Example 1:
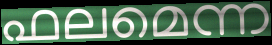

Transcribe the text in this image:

ഫലമെന്ന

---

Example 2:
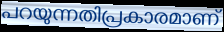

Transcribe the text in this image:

പറയുന്നതിപ്രകാരമാണ്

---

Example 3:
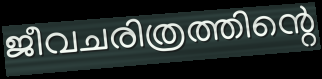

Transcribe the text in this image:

ജീവചരിത്രത്തിന്റെ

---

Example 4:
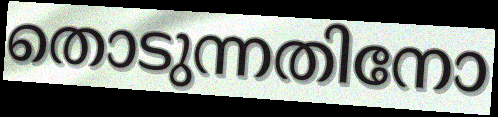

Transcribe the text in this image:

തൊടുന്നതിനോ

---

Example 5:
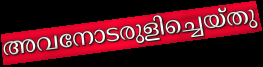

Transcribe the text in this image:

അവനോടരുളിച്ചെയ്തു